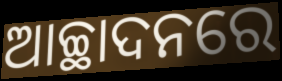
ଆଚ୍ଛାଦନରେ